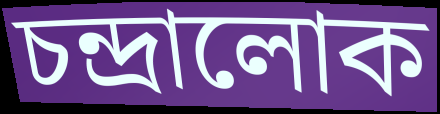
চন্দ্ৰালোক